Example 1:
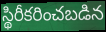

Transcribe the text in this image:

స్థిరీకరించబడిన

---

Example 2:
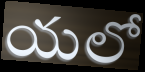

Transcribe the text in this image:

యలో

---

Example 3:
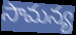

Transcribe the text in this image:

సామన్య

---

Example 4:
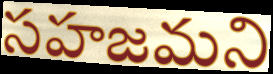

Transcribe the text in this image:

సహజమని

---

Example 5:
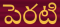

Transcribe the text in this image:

పెరటి